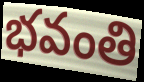
భవంతి